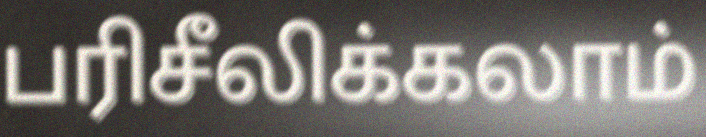
பரிசீலிக்கலாம்